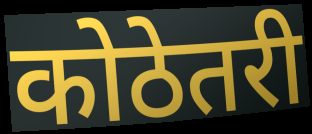
कोठेतरी